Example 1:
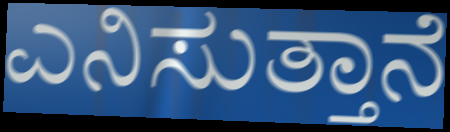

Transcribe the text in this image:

ಎನಿಸುತ್ತಾನೆ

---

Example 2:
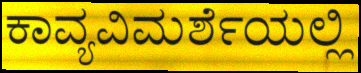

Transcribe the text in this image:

ಕಾವ್ಯವಿಮರ್ಶೆಯಲ್ಲಿ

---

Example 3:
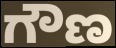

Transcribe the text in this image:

ಗೌಣ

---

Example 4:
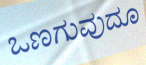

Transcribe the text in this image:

ಒಣಗುವುದೂ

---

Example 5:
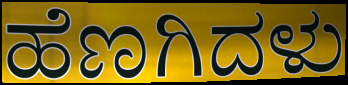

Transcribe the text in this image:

ಹೆಣಗಿದಳು